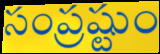
సంప్రష్టుం